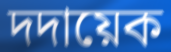
দদায়েক